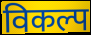
विकल्प